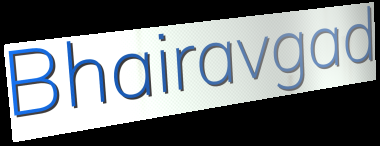
Bhairavgad